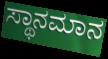
ಸ್ಥಾನಮಾನ